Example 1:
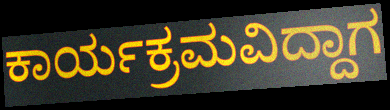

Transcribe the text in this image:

ಕಾರ್ಯಕ್ರಮವಿದ್ದಾಗ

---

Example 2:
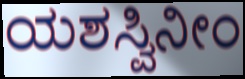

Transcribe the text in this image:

ಯಶಸ್ವಿನೀಂ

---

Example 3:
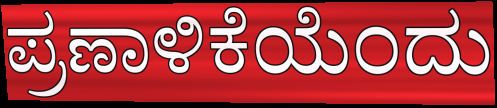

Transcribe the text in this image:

ಪ್ರಣಾಳಿಕೆಯೆಂದು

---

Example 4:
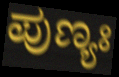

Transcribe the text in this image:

ಪುಣ್ಯಃ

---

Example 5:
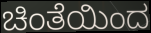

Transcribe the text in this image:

ಚಿಂತೆಯಿಂದ